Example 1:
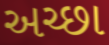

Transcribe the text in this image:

અચ્છા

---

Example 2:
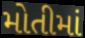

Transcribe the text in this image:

મોતીમાં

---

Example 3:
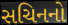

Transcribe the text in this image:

સચિનનો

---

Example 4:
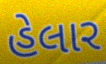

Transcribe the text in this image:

હેલાર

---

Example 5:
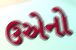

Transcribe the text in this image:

ઉએનો